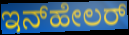
ಇನ್‌ಹೇಲರ್